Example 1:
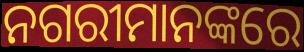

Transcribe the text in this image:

ନଗରୀମାନଙ୍କରେ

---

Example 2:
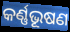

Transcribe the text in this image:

କର୍ଣ୍ଣଭୂଷଣ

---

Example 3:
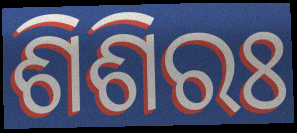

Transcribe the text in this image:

ଶିଶିରଃ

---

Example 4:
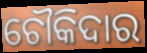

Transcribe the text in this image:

ଚୌକିଦାର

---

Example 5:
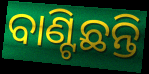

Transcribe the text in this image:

ବାଣ୍ଟିଛନ୍ତି